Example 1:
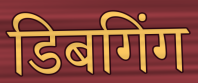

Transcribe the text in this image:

डिबगिंग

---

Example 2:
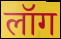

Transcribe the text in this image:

लॉग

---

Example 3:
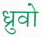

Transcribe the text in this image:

ध्रुवो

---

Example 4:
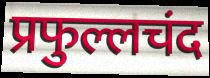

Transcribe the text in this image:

प्रफुल्लचंद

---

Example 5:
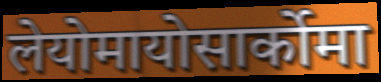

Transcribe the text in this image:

लेयोमायोसार्कोमा